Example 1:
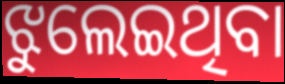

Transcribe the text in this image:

ଝୁଲେଇଥିବା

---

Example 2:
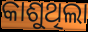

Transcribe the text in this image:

କାଶୁଥିଲା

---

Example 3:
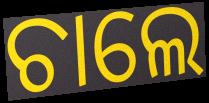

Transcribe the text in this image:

ଚାଲେ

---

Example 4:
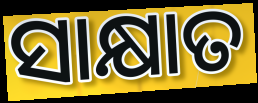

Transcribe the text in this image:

ସାକ୍ଷାତ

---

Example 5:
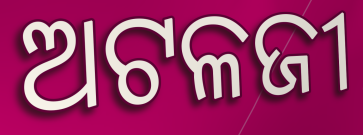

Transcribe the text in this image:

ଅଟଳଜୀ